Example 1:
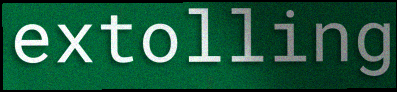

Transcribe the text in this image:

extolling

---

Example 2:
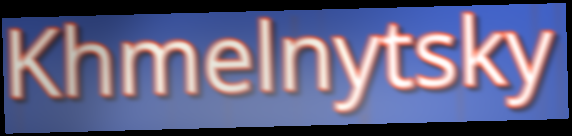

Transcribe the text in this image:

Khmelnytsky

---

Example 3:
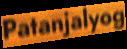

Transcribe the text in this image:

Patanjalyog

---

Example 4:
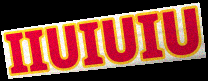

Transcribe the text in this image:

IIUIUIU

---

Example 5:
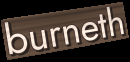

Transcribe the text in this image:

burneth